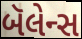
બૅલેન્સ